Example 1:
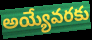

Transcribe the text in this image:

అయ్యేవరకు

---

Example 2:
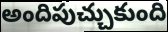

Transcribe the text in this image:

అందిపుచ్చుకుంది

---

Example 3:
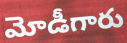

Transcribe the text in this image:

మోడీగారు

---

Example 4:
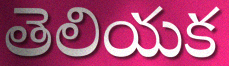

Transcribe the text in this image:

తెలియక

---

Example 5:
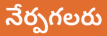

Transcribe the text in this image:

నేర్పగలరు